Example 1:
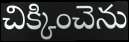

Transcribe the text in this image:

చిక్కించెను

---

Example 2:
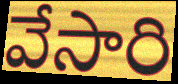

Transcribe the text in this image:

వేసారి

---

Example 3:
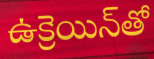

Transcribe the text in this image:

ఉక్రెయిన్‌తో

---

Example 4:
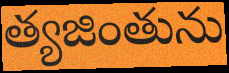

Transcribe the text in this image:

త్యజింతును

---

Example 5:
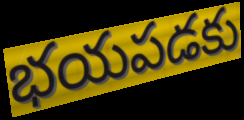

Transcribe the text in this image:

భయపడకు